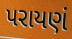
પરાયણં